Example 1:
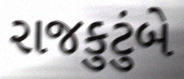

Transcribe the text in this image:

રાજકુટુંબે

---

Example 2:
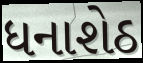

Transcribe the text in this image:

ધનાશેઠ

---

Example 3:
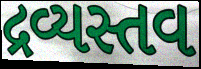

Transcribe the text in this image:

દ્રવ્યસ્તવ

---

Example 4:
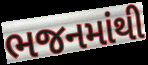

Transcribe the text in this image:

ભજનમાંથી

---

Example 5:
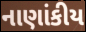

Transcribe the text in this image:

નાણાંકીય